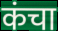
कंचा